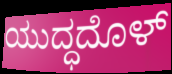
ಯುದ್ಧದೊಳ್